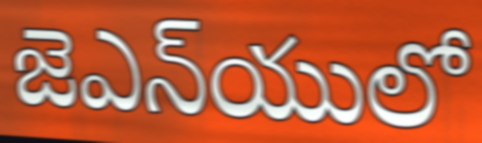
జెఎన్‌యులో